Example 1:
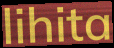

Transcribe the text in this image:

lihita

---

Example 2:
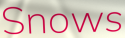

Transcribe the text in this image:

Snows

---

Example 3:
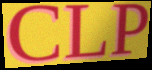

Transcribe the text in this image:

CLP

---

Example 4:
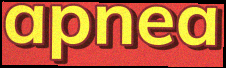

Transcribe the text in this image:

apnea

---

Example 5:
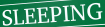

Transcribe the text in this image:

SLEEPING